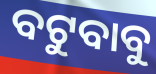
ବଟୁବାବୁ